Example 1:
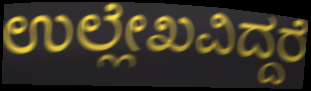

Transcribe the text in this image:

ಉಲ್ಲೇಖವಿದ್ದರೆ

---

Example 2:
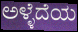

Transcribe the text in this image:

ಅಳ್ಳೆದೆಯ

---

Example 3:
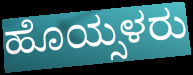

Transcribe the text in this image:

ಹೊಯ್ಸಳರು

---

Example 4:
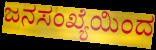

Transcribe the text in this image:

ಜನಸಂಖ್ಯೆಯಿಂದ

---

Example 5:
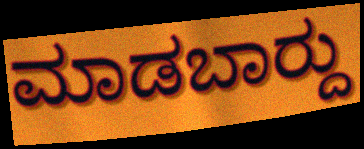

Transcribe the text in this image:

ಮಾಡಬಾರ್‍ದು